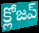
క్లోజప్